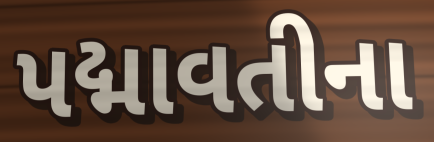
પદ્માવતીના